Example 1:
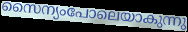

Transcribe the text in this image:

സൈന്യംപോലെയാകുന്നു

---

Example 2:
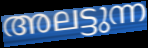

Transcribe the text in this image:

അലട്ടുന്ന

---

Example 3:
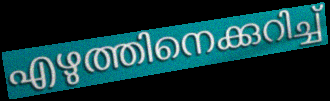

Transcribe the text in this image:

എഴുത്തിനെക്കുറിച്ച്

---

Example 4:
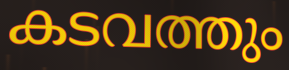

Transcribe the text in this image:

കടവത്തും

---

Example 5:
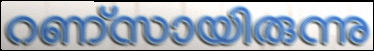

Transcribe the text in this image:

റണ്സായിരുന്നു